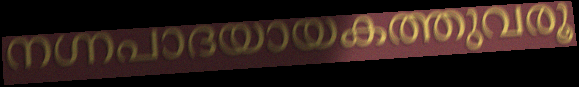
നഗ്നപാദയായകത്തുവരൂ